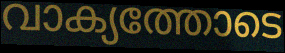
വാക്യത്തോടെ